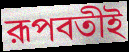
রূপবতীই